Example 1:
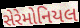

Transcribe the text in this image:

સેરેમોનિયલ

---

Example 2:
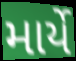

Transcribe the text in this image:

માર્યે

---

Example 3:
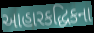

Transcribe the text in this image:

આહારકદ્ધિકના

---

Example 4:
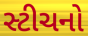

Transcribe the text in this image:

સ્ટીચનો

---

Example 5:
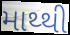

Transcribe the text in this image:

માથ્થી